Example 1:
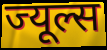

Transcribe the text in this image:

ज्यूल्स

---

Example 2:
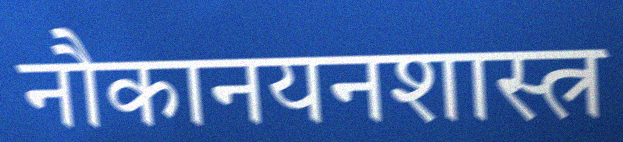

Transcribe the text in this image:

नौकानयनशास्त्र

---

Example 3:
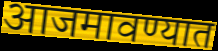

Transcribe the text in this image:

आजमावण्यात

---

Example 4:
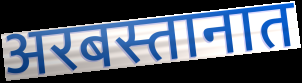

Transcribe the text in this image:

अरबस्तानात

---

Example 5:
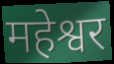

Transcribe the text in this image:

महेश्वर